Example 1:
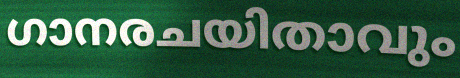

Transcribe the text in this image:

ഗാനരചയിതാവും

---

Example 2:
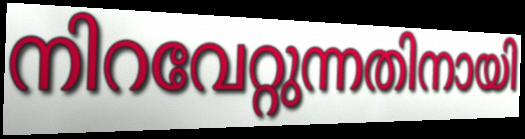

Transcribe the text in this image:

നിറവേറ്റുന്നതിനായി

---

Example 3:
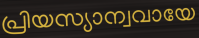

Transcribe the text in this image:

പ്രിയസ്യാന്വവായേ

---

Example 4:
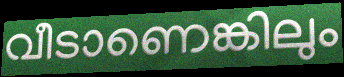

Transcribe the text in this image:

വീടാണെങ്കിലും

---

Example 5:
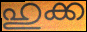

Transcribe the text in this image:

ഹുക്ക